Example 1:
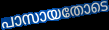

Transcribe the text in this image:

പാസായതോടെ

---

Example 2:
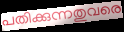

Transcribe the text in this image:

പതിക്കുന്നതുവരെ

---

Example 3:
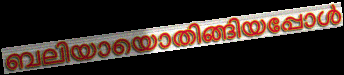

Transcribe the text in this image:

ബലിയായൊതിങ്ങിയപ്പോൾ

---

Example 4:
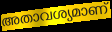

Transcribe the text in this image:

അതാവശ്യമാണ്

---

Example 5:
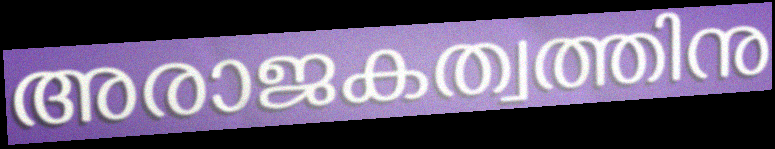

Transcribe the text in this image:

അരാജകത്വത്തിനു